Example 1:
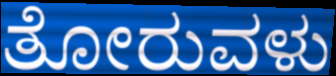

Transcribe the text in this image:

ತೋರುವಳು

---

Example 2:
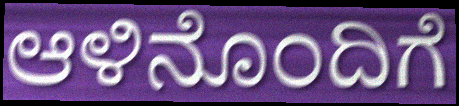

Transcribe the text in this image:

ಆಳಿನೊಂದಿಗೆ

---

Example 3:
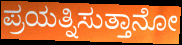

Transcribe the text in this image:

ಪ್ರಯತ್ನಿಸುತ್ತಾನೋ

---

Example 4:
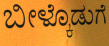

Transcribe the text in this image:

ಬೀಳ್ಕೊಡುಗೆ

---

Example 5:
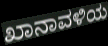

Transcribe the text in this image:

ಖಾನಾವಳಿಯ